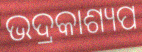
ଭଦ୍ରକାଶ୍ୟପ